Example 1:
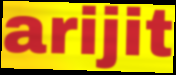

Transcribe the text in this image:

arijit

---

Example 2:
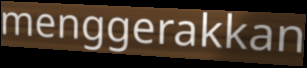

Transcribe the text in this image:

menggerakkan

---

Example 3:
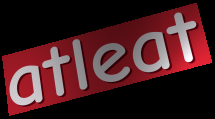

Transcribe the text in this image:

atleat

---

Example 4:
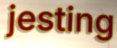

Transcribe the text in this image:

jesting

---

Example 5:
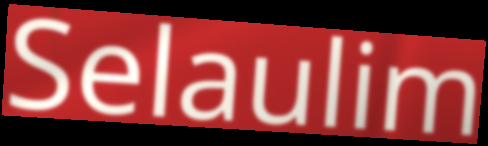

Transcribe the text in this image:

Selaulim